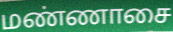
மண்ணாசை